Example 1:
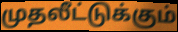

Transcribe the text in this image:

முதலீட்டுக்கும்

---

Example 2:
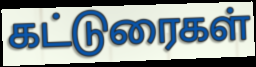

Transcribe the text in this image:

கட்டுரைகள்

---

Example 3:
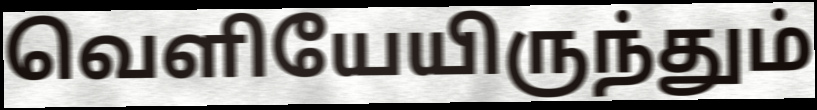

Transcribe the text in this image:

வெளியேயிருந்தும்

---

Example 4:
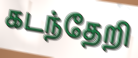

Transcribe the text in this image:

கடந்தேறி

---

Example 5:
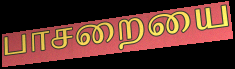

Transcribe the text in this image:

பாசறையை